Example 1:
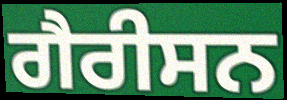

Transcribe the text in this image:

ਗੈਰੀਸਨ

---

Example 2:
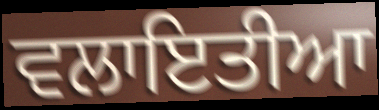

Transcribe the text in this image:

ਵਲਾਇਤੀਆ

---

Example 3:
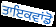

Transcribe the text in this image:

ਤਾਇਕਵਾਂਡੋ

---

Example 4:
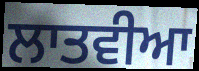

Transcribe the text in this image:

ਲਾਤਵੀਆ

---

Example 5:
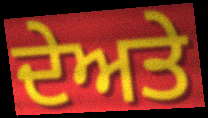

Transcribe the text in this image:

ਦੇਅਤੇ